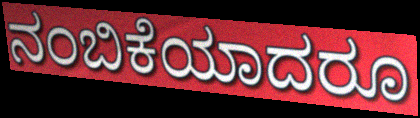
ನಂಬಿಕೆಯಾದರೂ